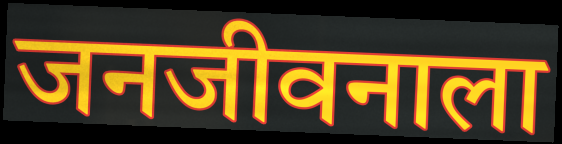
जनजीवनाला